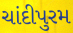
ચાંદીપુરમ